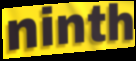
ninth